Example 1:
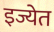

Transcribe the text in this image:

इज्येत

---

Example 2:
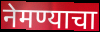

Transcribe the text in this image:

नेमण्याचा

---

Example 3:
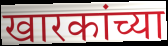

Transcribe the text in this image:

खारकांच्या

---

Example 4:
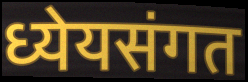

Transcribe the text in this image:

ध्येयसंगत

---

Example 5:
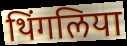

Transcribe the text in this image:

थिंगलिया